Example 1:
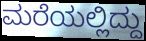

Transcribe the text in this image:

ಮರೆಯಲ್ಲಿದ್ದು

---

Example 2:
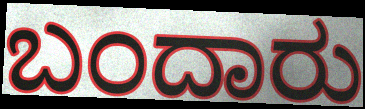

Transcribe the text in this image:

ಬಂದಾರು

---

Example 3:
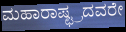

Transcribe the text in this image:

ಮಹಾರಾಷ್ಟ್ರದವರೇ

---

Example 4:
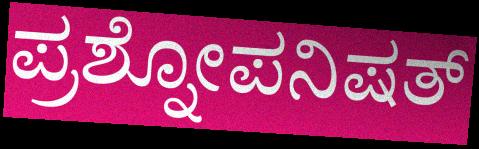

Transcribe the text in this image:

ಪ್ರಶ್ನೋಪನಿಷತ್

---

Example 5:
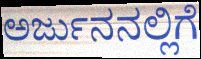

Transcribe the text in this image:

ಅರ್ಜುನನಲ್ಲಿಗೆ